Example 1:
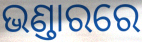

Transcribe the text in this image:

ଭଣ୍ଡାରରେ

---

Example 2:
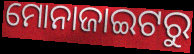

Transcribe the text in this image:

ମୋନାଜାଇଟରୁ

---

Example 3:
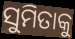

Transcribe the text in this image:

ସୁମିତାକୁ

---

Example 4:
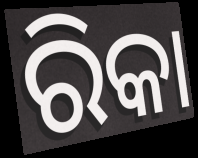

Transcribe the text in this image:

ରିକା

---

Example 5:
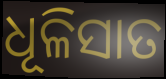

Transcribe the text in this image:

ଧୂଳିସାତ